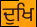
ਦੁਖਿ